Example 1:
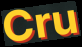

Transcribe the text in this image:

Cru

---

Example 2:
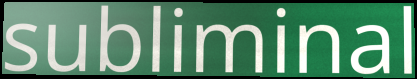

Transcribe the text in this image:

subliminal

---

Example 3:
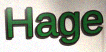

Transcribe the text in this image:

Hage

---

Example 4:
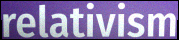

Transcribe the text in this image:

relativism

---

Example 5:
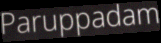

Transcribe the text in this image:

Paruppadam